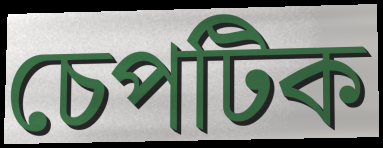
চেপটিক